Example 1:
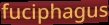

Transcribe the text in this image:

fuciphagus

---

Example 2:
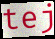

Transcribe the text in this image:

tej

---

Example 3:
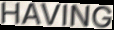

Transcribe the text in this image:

HAVING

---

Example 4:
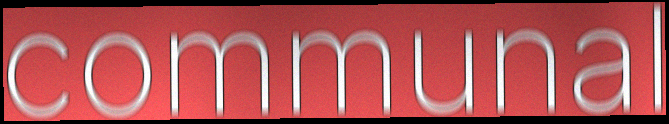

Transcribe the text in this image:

communal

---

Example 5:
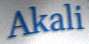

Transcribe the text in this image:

Akali